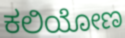
ಕಲಿಯೋಣ